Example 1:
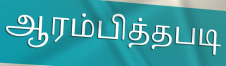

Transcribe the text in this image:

ஆரம்பித்தபடி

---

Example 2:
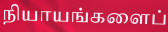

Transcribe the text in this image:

நியாயங்களைப்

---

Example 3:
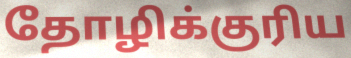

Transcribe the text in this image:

தோழிக்குரிய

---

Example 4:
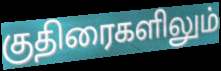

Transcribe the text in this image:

குதிரைகளிலும்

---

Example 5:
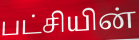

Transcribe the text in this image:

பட்சியின்